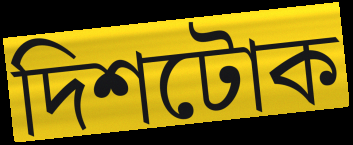
দিশটোক